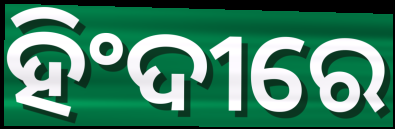
ହିଂଦୀରେ